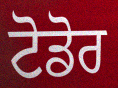
ਟੋਡੋਰ